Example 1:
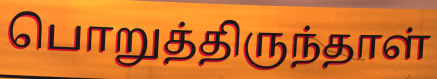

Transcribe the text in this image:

பொறுத்திருந்தாள்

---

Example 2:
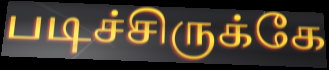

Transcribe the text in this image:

படிச்சிருக்கே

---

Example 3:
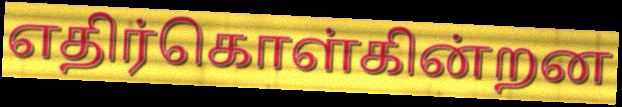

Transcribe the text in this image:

எதிர்கொள்கின்றன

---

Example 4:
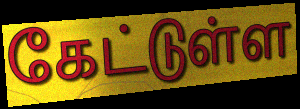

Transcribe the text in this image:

கேட்டுள்ள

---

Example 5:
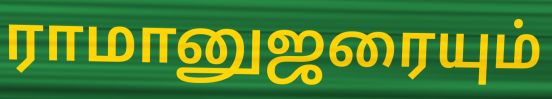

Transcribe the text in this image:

ராமானுஜரையும்